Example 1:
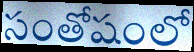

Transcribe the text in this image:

సంతోషంలో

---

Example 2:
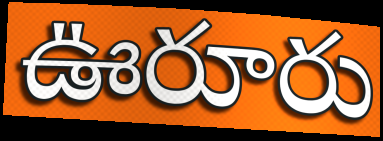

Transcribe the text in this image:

ఊరూరు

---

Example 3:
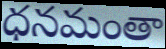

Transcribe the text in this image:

ధనమంతా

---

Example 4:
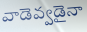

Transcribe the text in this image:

వాడెవ్వడైనా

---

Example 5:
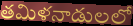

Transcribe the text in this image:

తమిళనాడులలో